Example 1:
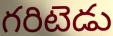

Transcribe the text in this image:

గరిటెడు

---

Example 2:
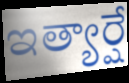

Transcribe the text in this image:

ఇత్యార్షే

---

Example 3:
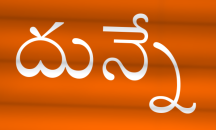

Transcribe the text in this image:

దున్నే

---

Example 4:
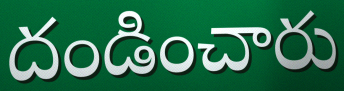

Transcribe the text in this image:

దండించారు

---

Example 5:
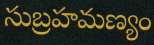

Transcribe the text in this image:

సుబ్రహమణ్యం